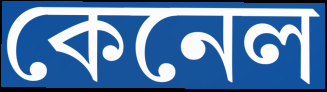
কেনেল